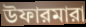
উফারমারা